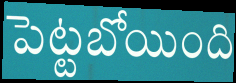
పెట్టబోయింది